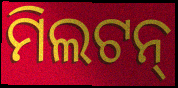
ମିଲଟନ୍